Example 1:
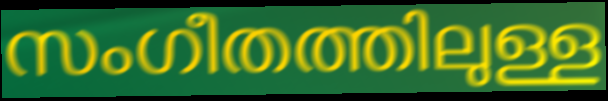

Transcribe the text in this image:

സംഗീതത്തിലുള്ള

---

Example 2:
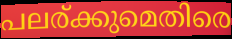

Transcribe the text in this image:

പലര്ക്കുമെതിരെ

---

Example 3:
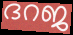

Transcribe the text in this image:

ദറജ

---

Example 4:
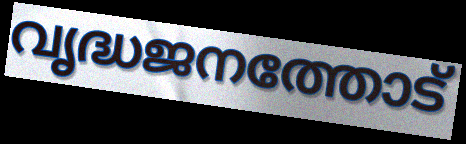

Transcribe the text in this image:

വൃദ്ധജനത്തോട്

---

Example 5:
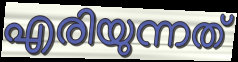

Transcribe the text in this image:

എരിയുന്നത്